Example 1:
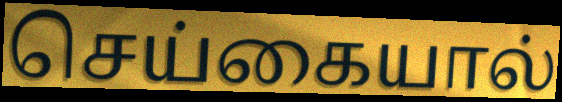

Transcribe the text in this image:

செய்கையால்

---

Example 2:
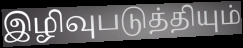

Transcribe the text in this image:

இழிவுபடுத்தியும்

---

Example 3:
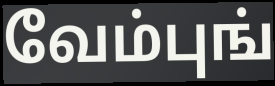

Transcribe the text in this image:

வேம்புங்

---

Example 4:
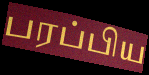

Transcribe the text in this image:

பரப்பிய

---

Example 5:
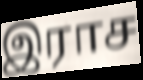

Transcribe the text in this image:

இராச